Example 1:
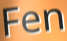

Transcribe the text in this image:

Fen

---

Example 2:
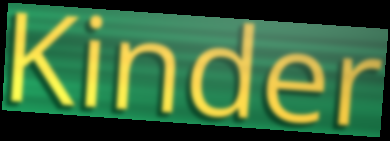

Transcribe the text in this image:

Kinder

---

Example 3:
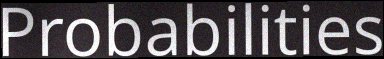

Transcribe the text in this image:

Probabilities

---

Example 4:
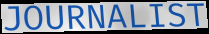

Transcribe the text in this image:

JOURNALIST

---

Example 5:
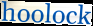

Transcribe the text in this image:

hoolock